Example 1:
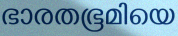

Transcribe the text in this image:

ഭാരതഭൂമിയെ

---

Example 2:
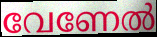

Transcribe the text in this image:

വേണേൽ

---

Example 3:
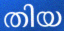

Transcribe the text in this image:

തിയ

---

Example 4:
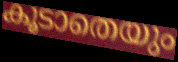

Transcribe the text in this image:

കൂടാതെയും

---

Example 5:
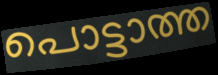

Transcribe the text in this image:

പൊട്ടാത്ത